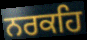
ਨਰਕਹਿ